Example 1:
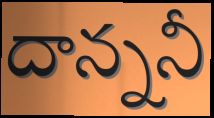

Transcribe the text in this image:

దాన్ననీ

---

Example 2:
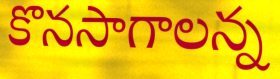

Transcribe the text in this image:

కొనసాగాలన్న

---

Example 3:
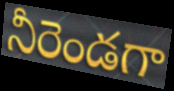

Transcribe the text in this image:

నీరెండగా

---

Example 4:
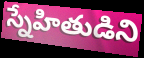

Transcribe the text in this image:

స్నేహితుడిని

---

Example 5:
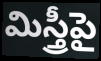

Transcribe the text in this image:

మిస్త్రీపై